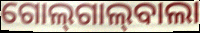
ଗୋଲ୍‍ଗାଲ୍‍ବାଲା